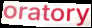
oratory